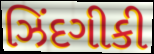
ઝિંદગીકી